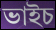
ভাইচ